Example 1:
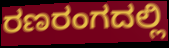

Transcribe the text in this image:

ರಣರಂಗದಲ್ಲಿ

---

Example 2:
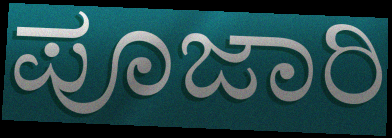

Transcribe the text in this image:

ಪೂಜಾರಿ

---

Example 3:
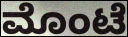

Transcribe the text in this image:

ಮೊಂಟೆ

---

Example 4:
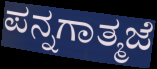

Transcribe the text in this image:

ಪನ್ನಗಾತ್ಮಜೆ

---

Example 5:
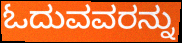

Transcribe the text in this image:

ಓದುವವರನ್ನು